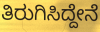
ತಿರುಗಿಸಿದ್ದೇನೆ